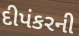
દીપંકરની